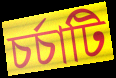
চর্চাটি